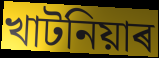
খাটনিয়াৰ